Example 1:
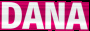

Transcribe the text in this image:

DANA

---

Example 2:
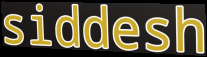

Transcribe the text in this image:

siddesh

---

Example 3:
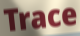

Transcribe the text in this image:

Trace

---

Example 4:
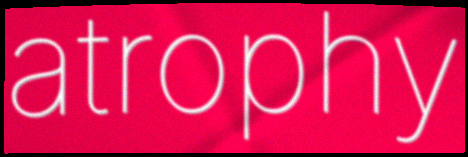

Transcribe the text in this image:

atrophy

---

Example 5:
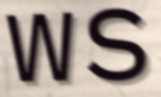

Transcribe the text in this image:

ws